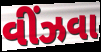
વીંઝવા